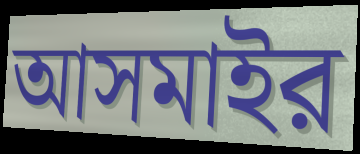
আসমাইর